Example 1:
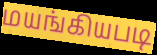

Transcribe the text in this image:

மயங்கியபடி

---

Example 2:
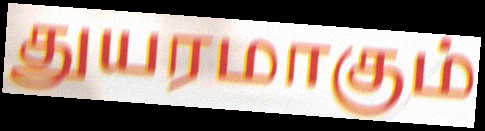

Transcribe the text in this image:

துயரமாகும்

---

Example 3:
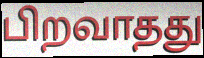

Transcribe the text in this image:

பிறவாதது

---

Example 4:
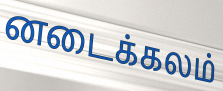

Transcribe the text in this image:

னடைக்கலம்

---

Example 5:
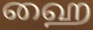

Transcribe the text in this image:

ஹை